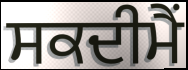
ਸਕਦੀਮੈਂ